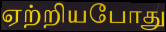
ஏற்றியபோது